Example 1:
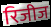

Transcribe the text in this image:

रिजीज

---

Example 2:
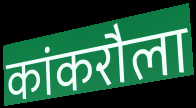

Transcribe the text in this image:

कांकरौला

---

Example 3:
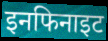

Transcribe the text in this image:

इनफिनाइट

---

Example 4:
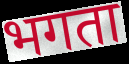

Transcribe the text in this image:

भगता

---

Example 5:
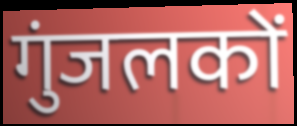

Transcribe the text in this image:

गुंजलकों